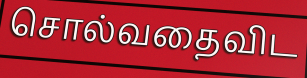
சொல்வதைவிட